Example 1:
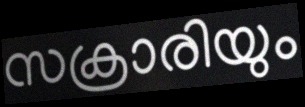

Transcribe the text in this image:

സക്രാരിയും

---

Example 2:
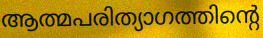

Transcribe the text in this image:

ആത്മപരിത്യാഗത്തിന്റെ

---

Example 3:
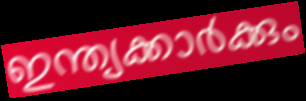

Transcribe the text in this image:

ഇന്ത്യക്കാർക്കും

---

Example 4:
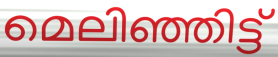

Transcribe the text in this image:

മെലിഞ്ഞിട്ട്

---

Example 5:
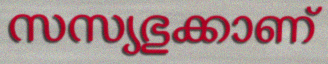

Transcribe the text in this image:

സസ്യഭുക്കാണ്